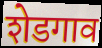
शेडगाव